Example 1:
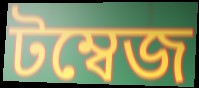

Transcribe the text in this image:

টম্বেজ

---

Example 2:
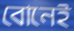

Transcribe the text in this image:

বোনেই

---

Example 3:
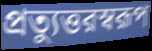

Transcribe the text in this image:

প্রত্যুত্তরস্বরূপ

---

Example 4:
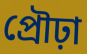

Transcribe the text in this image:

প্রৌঢ়া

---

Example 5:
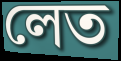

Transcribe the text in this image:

লেত